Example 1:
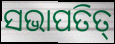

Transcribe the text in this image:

ସଭାପତିତ୍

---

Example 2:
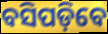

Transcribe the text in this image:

ବସିପଡ଼ିବେ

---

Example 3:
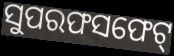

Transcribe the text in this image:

ସୁପରଫସଫେଟ୍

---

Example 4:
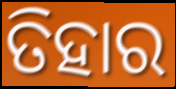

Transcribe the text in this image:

ତିହାର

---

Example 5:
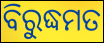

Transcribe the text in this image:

ବିରୁଦ୍ଧମତ